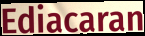
Ediacaran